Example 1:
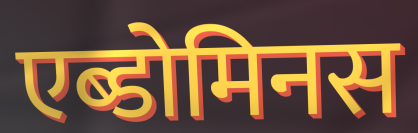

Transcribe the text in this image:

एब्डोमिनस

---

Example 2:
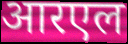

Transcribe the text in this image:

आरएल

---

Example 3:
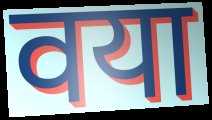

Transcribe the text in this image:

वया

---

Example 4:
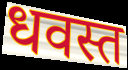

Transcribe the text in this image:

धवस्त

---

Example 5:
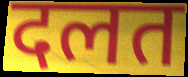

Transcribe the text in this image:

दलत